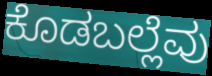
ಕೊಡಬಲ್ಲೆವು